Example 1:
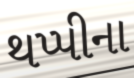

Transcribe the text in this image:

થપ્પીના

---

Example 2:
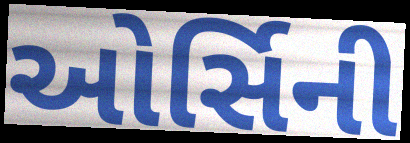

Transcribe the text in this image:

ઓર્સિની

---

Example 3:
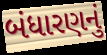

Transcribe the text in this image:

બંધારણનું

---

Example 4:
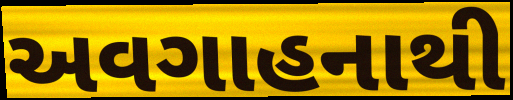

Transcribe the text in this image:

અવગાહનાથી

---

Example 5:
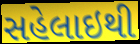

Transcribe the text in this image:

સહેલાઇથી